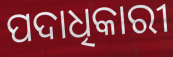
ପଦାଧିକାରୀ